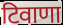
टिवाणा